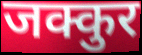
जक्कुर